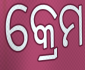
କ୍ରେମ